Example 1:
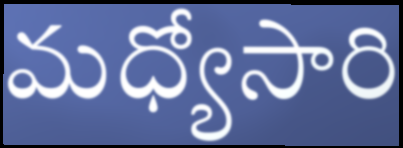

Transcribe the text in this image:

మధ్యోసారి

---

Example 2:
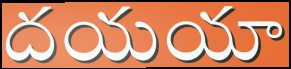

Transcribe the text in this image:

దయయా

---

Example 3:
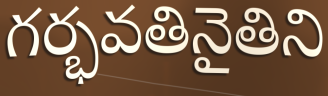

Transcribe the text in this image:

గర్భవతినైతిని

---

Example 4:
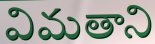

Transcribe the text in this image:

విమతాని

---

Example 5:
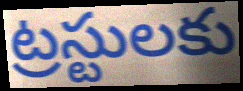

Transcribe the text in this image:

ట్రస్టులకు